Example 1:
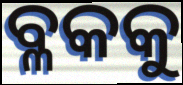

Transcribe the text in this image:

ବ୍ଳକକୁ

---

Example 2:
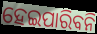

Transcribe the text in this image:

ହେଇପାରିବନି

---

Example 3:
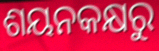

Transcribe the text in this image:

ଶୟନକକ୍ଷରୁ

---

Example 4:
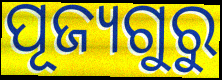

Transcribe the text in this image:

ପୂଜ୍ୟଗୁରୁ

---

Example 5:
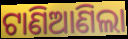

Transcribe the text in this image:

ଟାଣିଆଣିଲା